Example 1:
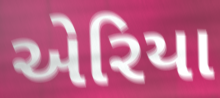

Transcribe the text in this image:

એરિયા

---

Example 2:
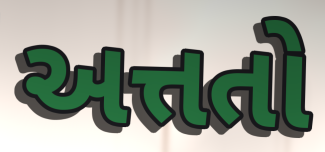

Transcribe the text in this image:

અત્તતો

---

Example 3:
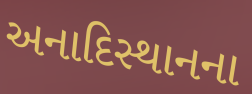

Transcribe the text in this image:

અનાદિસ્થાનના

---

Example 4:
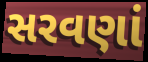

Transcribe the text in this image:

સરવણાં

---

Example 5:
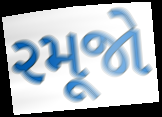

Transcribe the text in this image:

રમૂજો